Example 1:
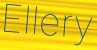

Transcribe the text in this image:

Ellery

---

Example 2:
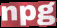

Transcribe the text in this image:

npg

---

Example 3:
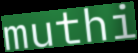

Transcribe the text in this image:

muthi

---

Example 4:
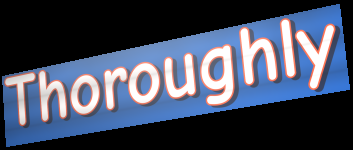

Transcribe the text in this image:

Thoroughly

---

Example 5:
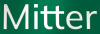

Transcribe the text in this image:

Mitter